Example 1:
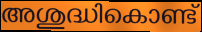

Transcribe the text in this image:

അശുദ്ധികൊണ്ട്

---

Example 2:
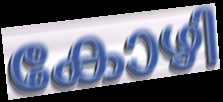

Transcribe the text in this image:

കോഴി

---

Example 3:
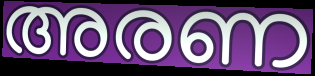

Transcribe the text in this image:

അരണ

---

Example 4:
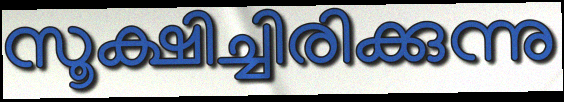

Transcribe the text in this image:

സൂക്ഷിച്ചിരിക്കുന്നു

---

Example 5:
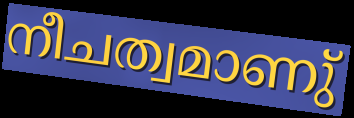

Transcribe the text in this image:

നീചത്വമാണു്